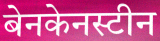
बेनकेनस्टीन